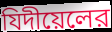
যিদীয়েলের